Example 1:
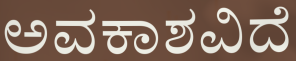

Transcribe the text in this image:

ಅವಕಾಶವಿದೆ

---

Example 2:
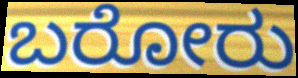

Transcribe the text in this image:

ಬರೋರು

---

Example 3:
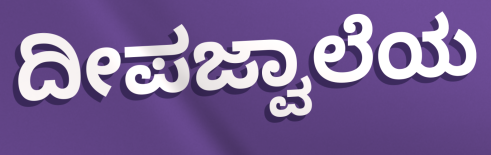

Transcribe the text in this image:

ದೀಪಜ್ವಾಲೆಯ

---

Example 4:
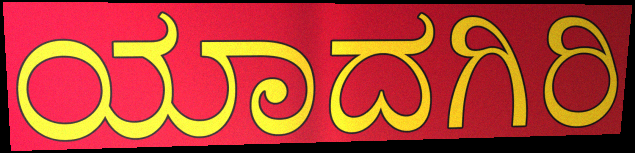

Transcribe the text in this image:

ಯಾದಗಿರಿ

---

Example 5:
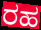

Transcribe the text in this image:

ರಹ